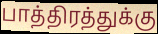
பாத்திரத்துக்கு